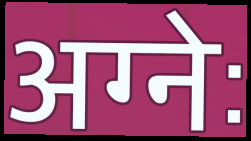
अग्नेः